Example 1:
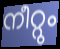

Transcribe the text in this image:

നീറ്റും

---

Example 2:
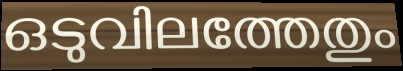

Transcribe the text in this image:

ഒടുവിലത്തേതും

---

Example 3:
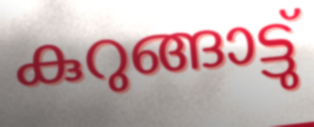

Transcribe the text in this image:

കുറുങ്ങാട്ടു്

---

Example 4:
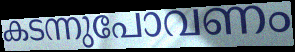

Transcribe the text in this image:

കടന്നുപോവണം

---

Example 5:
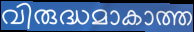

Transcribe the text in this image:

വിരുദ്ധമാകാത്ത